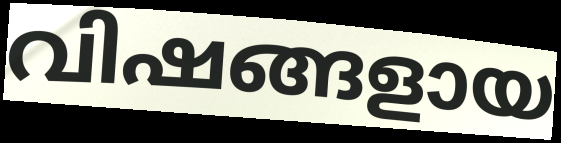
വിഷങ്ങളായ